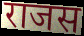
राजस